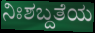
ನಿಃಶಬ್ದತೆಯ